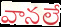
వానలే